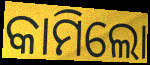
କାମିଲୋ